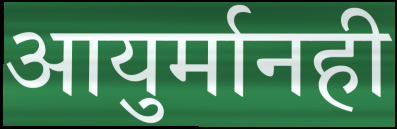
आयुर्मानही